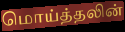
மொய்த்தலின்